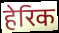
हेरिक